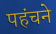
पहंचने